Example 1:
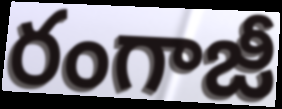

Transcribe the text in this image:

రంగాజీ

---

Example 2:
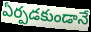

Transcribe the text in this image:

ఏర్పడకుండానే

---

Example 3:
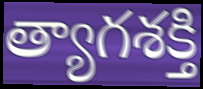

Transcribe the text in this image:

త్యాగశక్తి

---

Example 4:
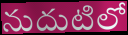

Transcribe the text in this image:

నుదుటిలో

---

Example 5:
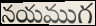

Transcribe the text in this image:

నయముగ